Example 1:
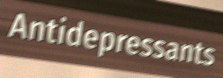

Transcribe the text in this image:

Antidepressants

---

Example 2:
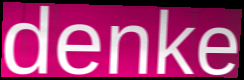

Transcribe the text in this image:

denke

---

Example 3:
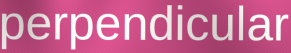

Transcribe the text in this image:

perpendicular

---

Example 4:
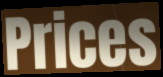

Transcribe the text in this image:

Prices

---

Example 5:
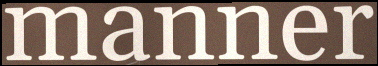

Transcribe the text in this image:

manner